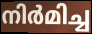
നിർമിച്ച